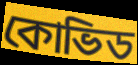
কোভিড